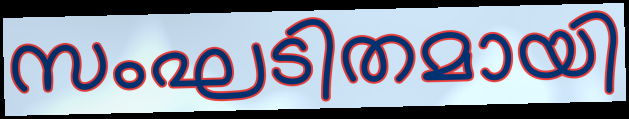
സംഘടിതമായി